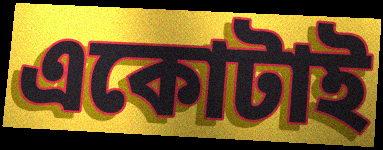
একোটাই